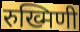
रुख्मिणी